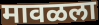
मावळला